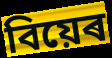
বিয়েৰ